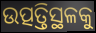
ଉତ୍ପତ୍ତିସ୍ଥଳକୁ